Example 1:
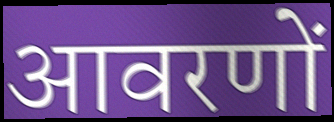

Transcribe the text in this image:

आवरणों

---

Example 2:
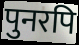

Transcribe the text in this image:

पुनरपि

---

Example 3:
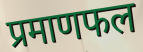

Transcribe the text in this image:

प्रमाणफल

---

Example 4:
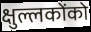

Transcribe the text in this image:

क्षुल्लकोंको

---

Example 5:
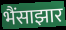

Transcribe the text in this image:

भैंसाझार